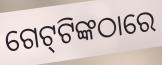
ଗେଟ୍‌ଟିଙ୍କଠାରେ